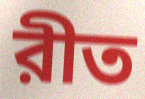
রীত